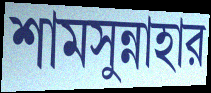
শামসুন্নাহার